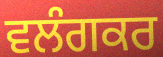
ਵਲੰਗਕਰ